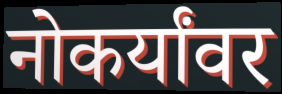
नोकर्यांवर